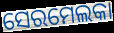
ସେରମେଲକା